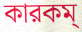
কারকম্